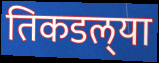
तिकडल्या